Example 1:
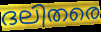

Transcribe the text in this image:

ദലിതരെ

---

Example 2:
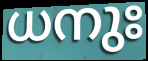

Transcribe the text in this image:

ധനുഃ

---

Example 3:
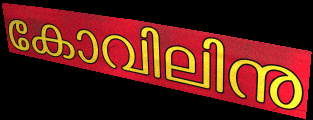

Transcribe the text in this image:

കോവിലിനു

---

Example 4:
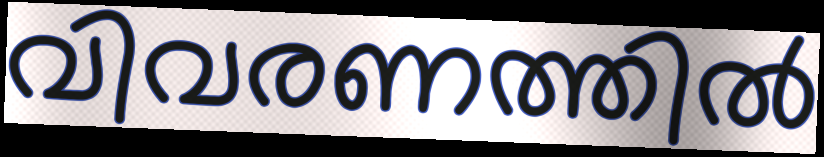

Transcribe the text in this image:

വിവരണത്തിൽ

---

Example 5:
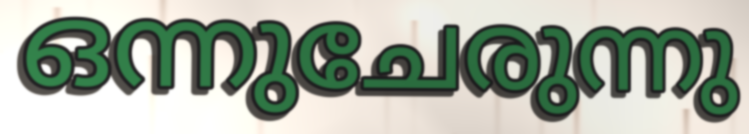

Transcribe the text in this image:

ഒന്നുചേരുന്നു